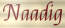
Naadig